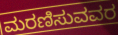
ಮರಣಿಸುವವರ